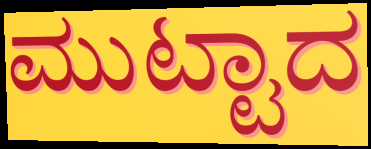
ಮುಟ್ಟಾದ